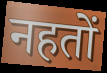
नहतों